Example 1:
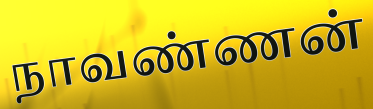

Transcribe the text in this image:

நாவண்ணன்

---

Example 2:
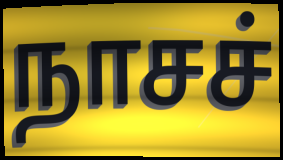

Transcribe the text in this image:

நாசச்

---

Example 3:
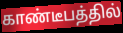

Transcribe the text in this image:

காண்டீபத்தில்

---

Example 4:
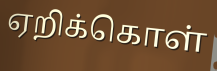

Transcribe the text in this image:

ஏறிக்கொள்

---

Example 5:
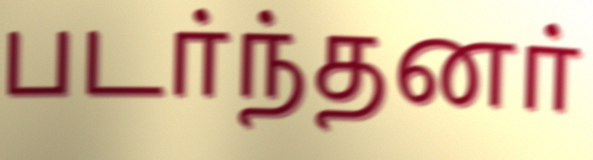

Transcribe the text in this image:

படர்ந்தனர்